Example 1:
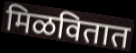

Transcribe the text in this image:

मिळवितात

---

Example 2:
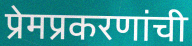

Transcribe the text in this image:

प्रेमप्रकरणांची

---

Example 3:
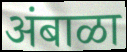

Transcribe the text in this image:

अंबाळा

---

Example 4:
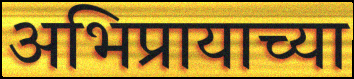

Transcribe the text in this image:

अभिप्रायाच्या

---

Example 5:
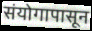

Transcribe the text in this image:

संयोगापासून